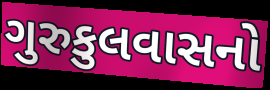
ગુરુકુલવાસનો